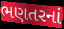
ભણતરનાં